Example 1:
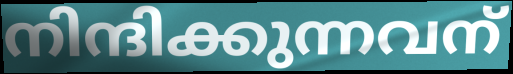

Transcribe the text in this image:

നിന്ദിക്കുന്നവന്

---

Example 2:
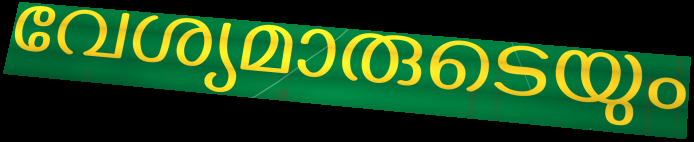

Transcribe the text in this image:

വേശ്യമാരുടെയും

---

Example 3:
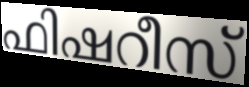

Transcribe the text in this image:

ഫിഷറീസ്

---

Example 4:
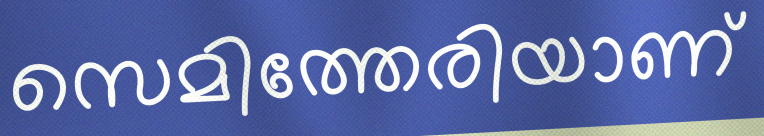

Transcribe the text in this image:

സെമിത്തേരിയാണ്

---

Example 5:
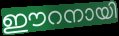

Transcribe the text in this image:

ഈറനായി